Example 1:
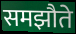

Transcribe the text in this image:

समझौते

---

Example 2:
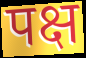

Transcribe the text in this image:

पक्ष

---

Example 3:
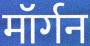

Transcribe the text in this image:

मॉर्गन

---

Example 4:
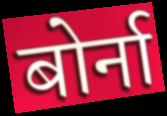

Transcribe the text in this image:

बोर्ना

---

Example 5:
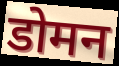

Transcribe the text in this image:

डोमन